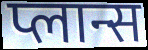
प्‍लान्‍स